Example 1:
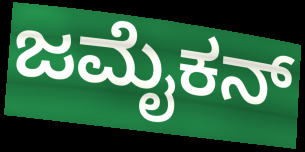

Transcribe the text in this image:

ಜಮೈಕನ್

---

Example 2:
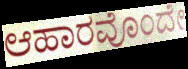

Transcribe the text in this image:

ಆಹಾರವೊಂದೇ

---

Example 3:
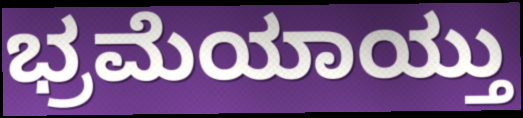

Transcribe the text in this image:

ಭ್ರಮೆಯಾಯ್ತು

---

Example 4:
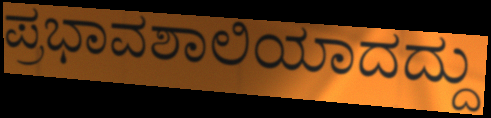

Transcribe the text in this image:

ಪ್ರಭಾವಶಾಲಿಯಾದದ್ದು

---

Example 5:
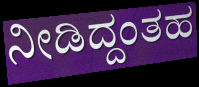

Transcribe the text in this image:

ನೀಡಿದ್ದಂತಹ